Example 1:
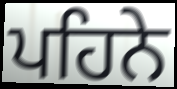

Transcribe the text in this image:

ਪਹਿਨੇ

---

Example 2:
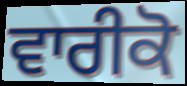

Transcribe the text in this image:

ਵਾਰੀਕੋ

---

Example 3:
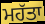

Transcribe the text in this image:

ਮਹੱਤਾ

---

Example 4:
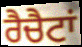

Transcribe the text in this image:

ਰੈਚੈਟਾਂ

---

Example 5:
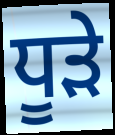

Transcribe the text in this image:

ਧੂੜੇ